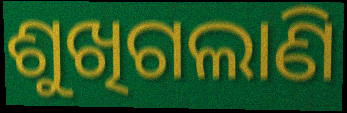
ଶୁଖିଗଲାଣି